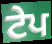
ਟੇਪ